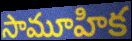
సామూహిక